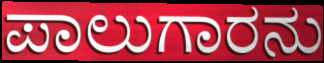
ಪಾಲುಗಾರನು